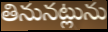
తినునట్లును